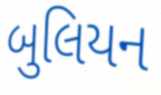
બુલિયન